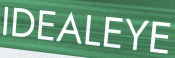
IDEALEYE